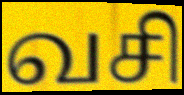
வசி